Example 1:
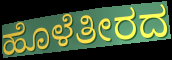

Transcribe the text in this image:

ಹೊಳೆತೀರದ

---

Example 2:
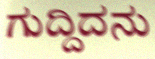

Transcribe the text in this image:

ಗುದ್ದಿದನು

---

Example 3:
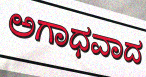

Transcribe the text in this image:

ಅಗಾಧವಾದ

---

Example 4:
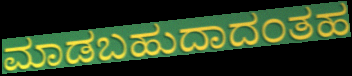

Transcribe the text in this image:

ಮಾಡಬಹುದಾದಂತಹ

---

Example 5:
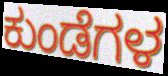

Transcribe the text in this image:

ಕುಂಡೆಗಳ